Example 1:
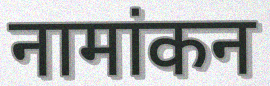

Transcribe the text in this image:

नामांकन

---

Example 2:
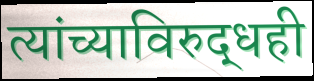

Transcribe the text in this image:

त्यांच्याविरुद्धही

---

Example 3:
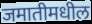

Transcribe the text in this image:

जमातीमधील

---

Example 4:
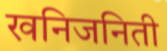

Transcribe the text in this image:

खनिजनिती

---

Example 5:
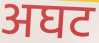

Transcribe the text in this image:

अघट